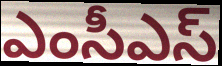
ఎంసీఎస్